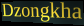
Dzongkha